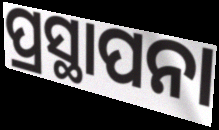
ପ୍ରସ୍ଥାପନା